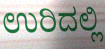
ಉರಿದಲ್ಲಿ